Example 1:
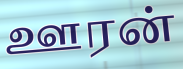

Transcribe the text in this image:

ஊரன்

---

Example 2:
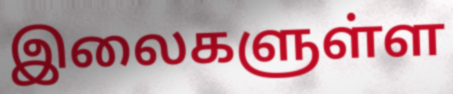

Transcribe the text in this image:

இலைகளுள்ள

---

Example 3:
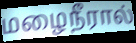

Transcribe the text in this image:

மழைநீரால்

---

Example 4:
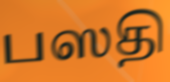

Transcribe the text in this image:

பஸதி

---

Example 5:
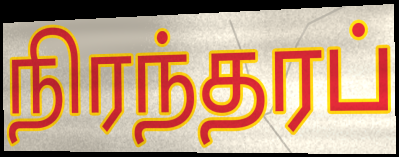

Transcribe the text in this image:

நிரந்தரப்